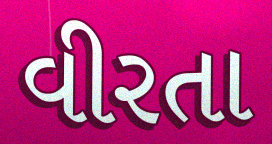
વીરતા